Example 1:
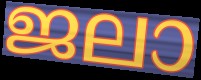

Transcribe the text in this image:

ജലാ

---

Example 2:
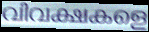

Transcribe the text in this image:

വിവക്ഷകളെ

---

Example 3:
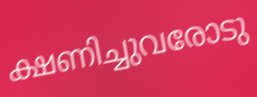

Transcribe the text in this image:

ക്ഷണിച്ചുവരോടു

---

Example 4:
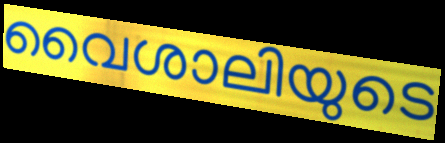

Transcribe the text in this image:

വൈശാലിയുടെ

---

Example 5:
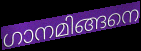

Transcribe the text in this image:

ഗാനമിങ്ങനെ